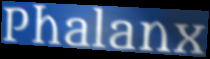
Phalanx